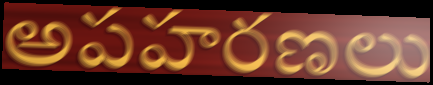
అపహరణలు